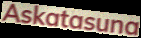
Askatasuna